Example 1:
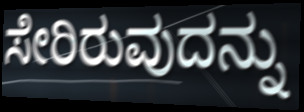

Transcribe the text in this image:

ಸೇರಿರುವುದನ್ನು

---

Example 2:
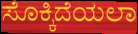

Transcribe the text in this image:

ಸೊಕ್ಕಿದೆಯಲಾ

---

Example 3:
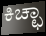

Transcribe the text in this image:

ಕಿಚ್ಛಾ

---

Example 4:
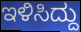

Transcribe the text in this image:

ಇಳಿಸಿದ್ದು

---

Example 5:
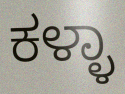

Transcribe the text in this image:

ಕಳ್ಳಾ